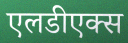
एलडीएक्स